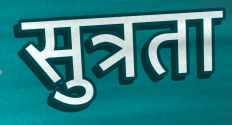
सुत्रता